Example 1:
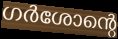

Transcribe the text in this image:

ഗർശോന്റെ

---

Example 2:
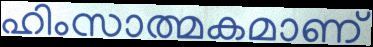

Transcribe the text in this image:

ഹിംസാത്മകമാണ്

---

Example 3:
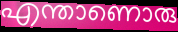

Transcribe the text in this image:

എന്താണൊരു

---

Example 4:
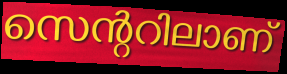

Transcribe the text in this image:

സെന്ററിലാണ്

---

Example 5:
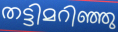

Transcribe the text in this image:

തട്ടിമറിഞ്ഞു